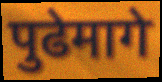
पुढेमागे